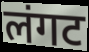
लंगट